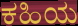
ಕಹಿಯ